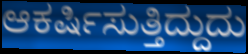
ಆಕರ್ಷಿಸುತ್ತಿದ್ದುದು